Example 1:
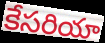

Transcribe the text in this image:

కేసరియా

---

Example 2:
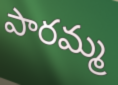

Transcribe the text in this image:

పారమ్మ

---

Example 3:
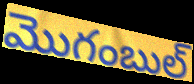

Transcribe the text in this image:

మొగంబుల్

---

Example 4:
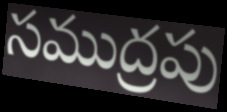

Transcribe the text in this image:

సముద్రపు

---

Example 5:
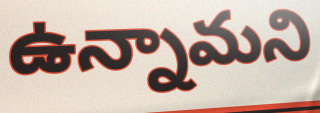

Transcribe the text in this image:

ఉన్నామని